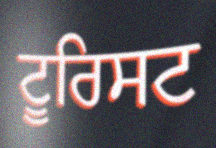
ਟੂਰਿਸਟ